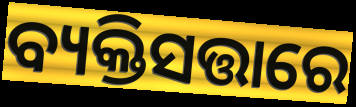
ବ୍ୟକ୍ତିସତ୍ତାରେ